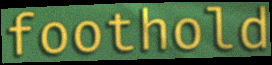
foothold